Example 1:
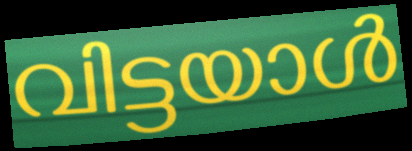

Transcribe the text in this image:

വിട്ടയാൾ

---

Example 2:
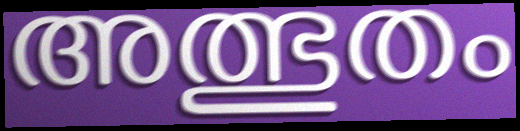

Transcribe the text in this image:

അത്ഭുതം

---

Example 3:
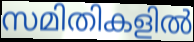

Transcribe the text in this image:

സമിതികളിൽ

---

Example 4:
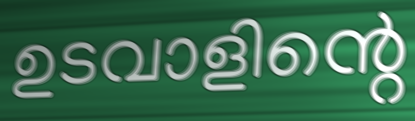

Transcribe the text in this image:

ഉടവാളിന്റെ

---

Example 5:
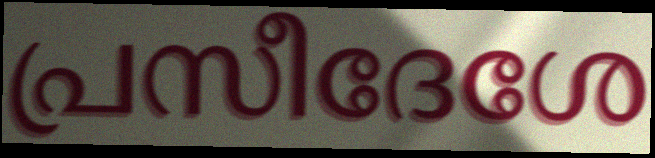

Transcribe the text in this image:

പ്രസീദേശേ